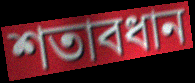
শতাবধান